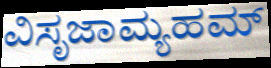
ವಿಸೃಜಾಮ್ಯಹಮ್